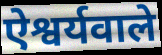
ऐश्वर्यवाले